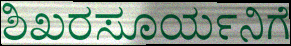
ಶಿಖರಸೂರ್ಯನಿಗೆ